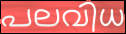
പലവിധ